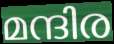
മന്ദിര